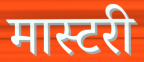
मास्टरी